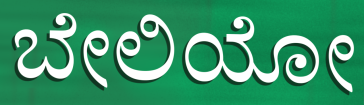
ಬೇಲಿಯೋ